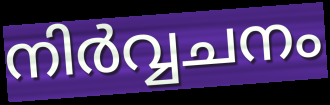
നിർവ്വചനം